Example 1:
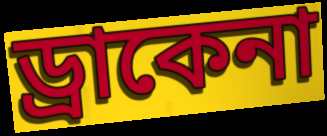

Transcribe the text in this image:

ড্রাকেনা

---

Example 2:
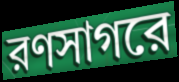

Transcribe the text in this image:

রণসাগরে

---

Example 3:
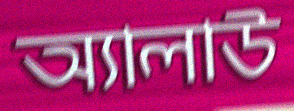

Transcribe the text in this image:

অ্যালাউ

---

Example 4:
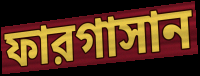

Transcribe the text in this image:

ফারগাসান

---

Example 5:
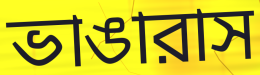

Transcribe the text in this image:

ভাঙারাস